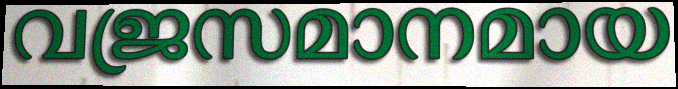
വജ്രസമാനമായ